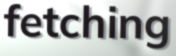
fetching